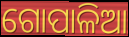
ଗୋପାଳିଆ